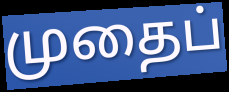
முதைப்